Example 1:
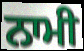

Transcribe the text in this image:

ਨਾਮੀ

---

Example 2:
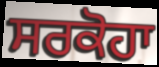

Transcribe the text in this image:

ਸਰਕੋਹਾ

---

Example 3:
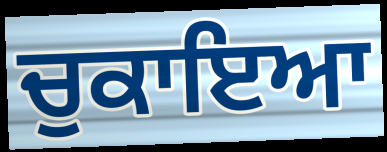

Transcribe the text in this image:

ਚੁਕਾਇਆ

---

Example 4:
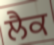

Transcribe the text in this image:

ਲੈਕ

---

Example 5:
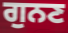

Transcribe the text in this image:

ਗੁਨਣ